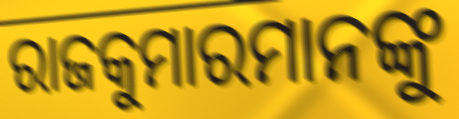
ରାଜକୁମାରମାନଙ୍କୁ